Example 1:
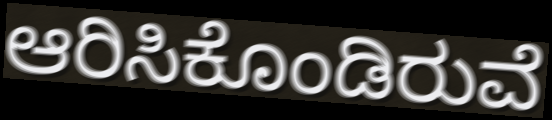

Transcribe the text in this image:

ಆರಿಸಿಕೊಂಡಿರುವೆ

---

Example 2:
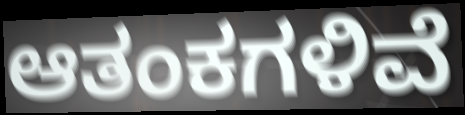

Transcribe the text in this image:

ಆತಂಕಗಳಿವೆ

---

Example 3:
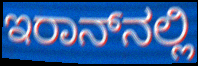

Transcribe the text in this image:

ಇರಾನ್‌ನಲ್ಲಿ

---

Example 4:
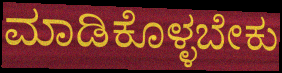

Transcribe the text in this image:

ಮಾಡಿಕೊಳ್ಳಬೇಕು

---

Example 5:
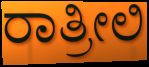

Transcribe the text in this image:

ರಾತ್ರೀಲಿ